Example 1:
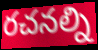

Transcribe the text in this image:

రచనల్ని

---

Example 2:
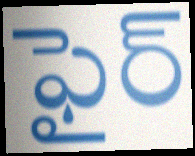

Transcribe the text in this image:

ఫైర్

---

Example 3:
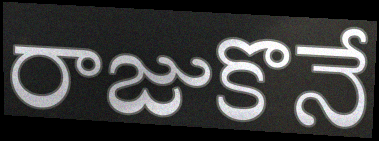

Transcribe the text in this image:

రాజుకొనే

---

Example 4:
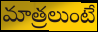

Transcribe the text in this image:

మాత్రలుంటే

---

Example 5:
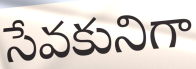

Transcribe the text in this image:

సేవకునిగా